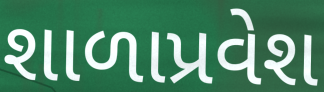
શાળાપ્રવેશ